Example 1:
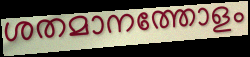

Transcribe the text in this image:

ശതമാനത്തോളം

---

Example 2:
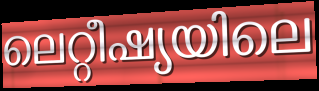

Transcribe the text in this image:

ലെറ്റീഷ്യയിലെ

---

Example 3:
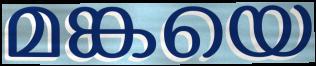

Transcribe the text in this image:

മങ്കയെ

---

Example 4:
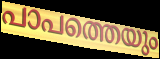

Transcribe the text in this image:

പാപത്തെയും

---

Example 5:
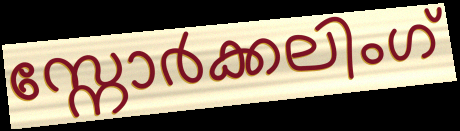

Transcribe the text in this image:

സ്നോർക്കലിംഗ്